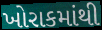
ખોરાકમાંથી